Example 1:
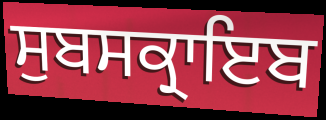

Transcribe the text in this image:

ਸੁਬਸਕ੍ਰਾਇਬ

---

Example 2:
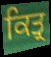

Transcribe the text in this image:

ਕਿਤ੍ਰ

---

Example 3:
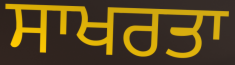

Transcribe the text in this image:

ਸਾਖਰਤਾ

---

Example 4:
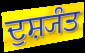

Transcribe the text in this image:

ਦੁਸ਼੍ਯੰਤ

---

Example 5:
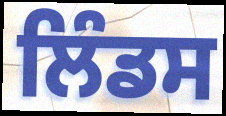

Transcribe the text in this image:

ਲਿੰਡਸ